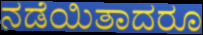
ನಡೆಯಿತಾದರೂ